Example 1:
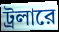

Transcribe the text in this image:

ট্রলারে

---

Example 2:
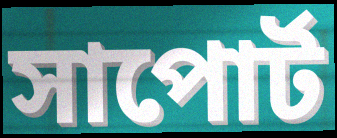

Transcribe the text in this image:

সাপোর্ট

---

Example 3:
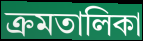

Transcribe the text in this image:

ক্রমতালিকা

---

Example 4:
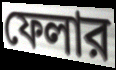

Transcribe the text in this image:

ফেলার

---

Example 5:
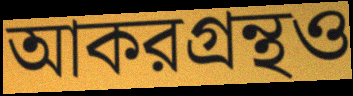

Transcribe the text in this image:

আকরগ্রন্থও